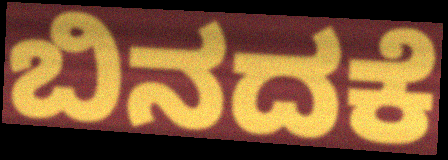
ಬಿನದಕೆ